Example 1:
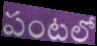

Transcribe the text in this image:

పంటలో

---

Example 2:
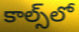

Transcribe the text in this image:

కాల్స్‌లో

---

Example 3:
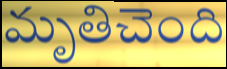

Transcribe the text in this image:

మృతిచెంది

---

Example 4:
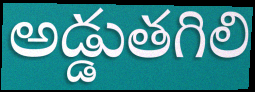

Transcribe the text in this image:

అడ్డుతగిలి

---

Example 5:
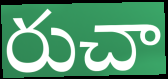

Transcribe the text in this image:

రుచా